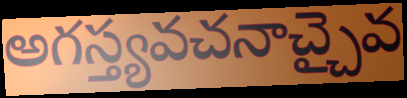
అగస్త్యవచనాచ్చైవ